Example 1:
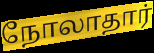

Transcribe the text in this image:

நோலாதார்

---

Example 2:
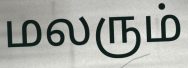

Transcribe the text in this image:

மலரும்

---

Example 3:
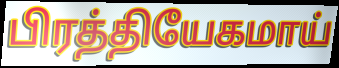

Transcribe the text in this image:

பிரத்தியேகமாய்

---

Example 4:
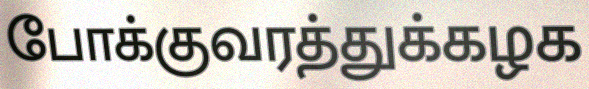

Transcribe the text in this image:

போக்குவரத்துக்கழக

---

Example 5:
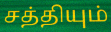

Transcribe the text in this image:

சத்தியும்